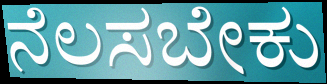
ನೆಲಸಬೇಕು